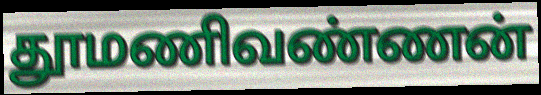
தூமணிவண்ணன்